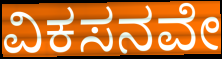
ವಿಕಸನವೇ